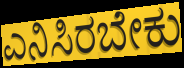
ಎನಿಸಿರಬೇಕು